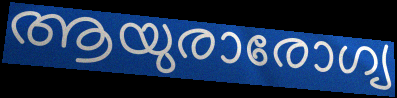
ആയുരാരോഗ്യ